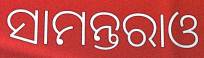
ସାମନ୍ତରାଓ